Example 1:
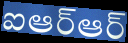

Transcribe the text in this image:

ఐఆర్ఆర్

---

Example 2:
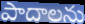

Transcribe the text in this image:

పాదాలను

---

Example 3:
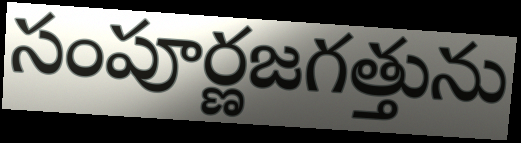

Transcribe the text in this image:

సంపూర్ణజగత్తును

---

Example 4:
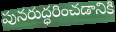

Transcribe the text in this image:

పునరుద్ధరించడానికి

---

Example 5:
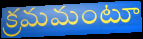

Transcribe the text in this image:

క్రమమంటూ